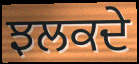
ਝਲਕਦੇ